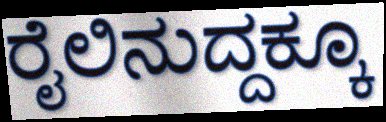
ರೈಲಿನುದ್ದಕ್ಕೂ